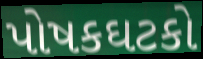
પોષકઘટકો